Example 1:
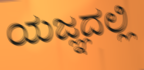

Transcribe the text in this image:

ಯಜ್ಞದಲ್ಲಿ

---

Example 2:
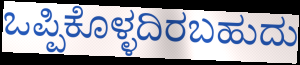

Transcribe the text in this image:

ಒಪ್ಪಿಕೊಳ್ಳದಿರಬಹುದು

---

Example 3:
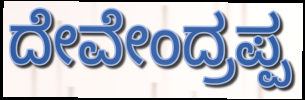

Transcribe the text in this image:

ದೇವೇಂದ್ರಪ್ಪ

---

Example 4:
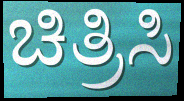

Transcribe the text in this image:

ಚಿತ್ರಿಸಿ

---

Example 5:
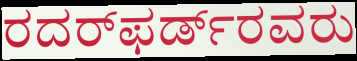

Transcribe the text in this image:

ರದರ್‌ಫರ್ಡ್‌ರವರು